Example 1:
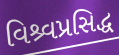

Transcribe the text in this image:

વિશ્ર્વપ્રસિદ્ધ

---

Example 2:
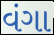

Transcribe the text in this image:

વંગા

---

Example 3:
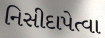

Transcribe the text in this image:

નિસીદાપેત્વા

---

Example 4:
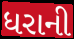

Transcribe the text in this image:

ધરાની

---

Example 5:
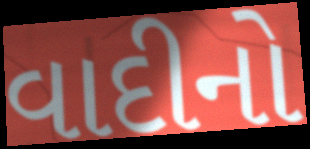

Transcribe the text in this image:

વાદીનો